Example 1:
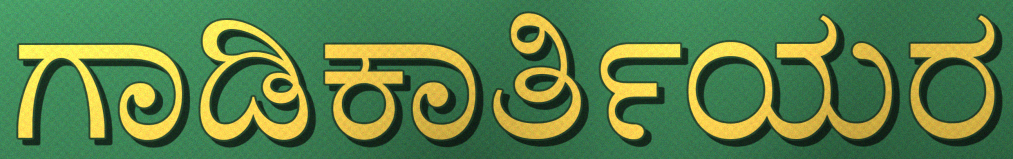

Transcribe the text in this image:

ಗಾಡಿಕಾರ್ತಿಯರ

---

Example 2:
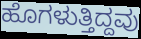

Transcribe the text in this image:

ಹೊಗಳುತ್ತಿದ್ದವು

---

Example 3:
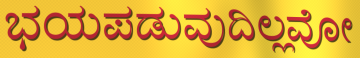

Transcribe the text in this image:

ಭಯಪಡುವುದಿಲ್ಲವೋ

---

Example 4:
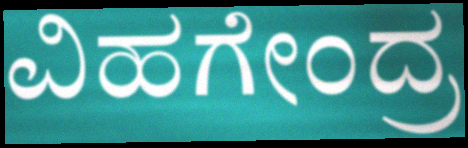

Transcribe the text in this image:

ವಿಹಗೇಂದ್ರ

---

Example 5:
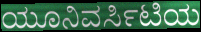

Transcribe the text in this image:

ಯೂನಿವರ್ಸಿಟಿಯ